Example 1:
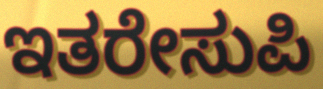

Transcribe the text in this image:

ಇತರೇಸುಪಿ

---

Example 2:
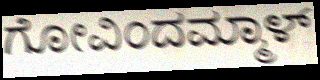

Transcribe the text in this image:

ಗೋವಿಂದಮ್ಮಾಳ್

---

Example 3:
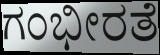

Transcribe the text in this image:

ಗಂಭೀರತೆ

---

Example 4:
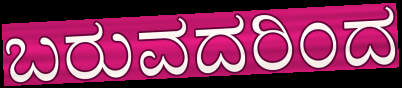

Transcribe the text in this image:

ಬರುವದರಿಂದ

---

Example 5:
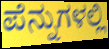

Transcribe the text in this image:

ಪೆನ್ನುಗಳಲ್ಲಿ